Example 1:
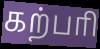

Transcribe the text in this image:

கற்பரி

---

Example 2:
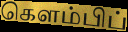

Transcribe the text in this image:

கௌம்பிப்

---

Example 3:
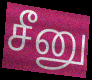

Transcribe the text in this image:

சீனு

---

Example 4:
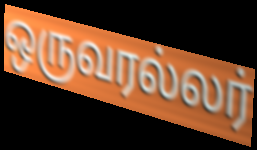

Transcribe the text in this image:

ஒருவரல்லர்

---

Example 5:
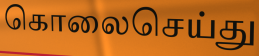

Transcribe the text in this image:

கொலைசெய்து